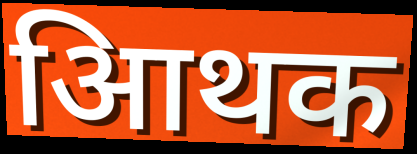
आिथक